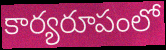
కార్యరూపంలో